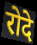
रोदे